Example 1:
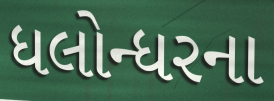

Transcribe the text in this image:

ધલોન્ધરના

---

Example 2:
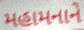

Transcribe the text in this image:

મહામનાને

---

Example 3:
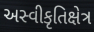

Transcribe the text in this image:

અસ્વીકૃતિક્ષેત્ર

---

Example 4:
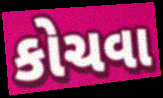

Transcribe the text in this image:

કોચવા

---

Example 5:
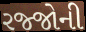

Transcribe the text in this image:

રજ્જોની